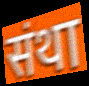
संथा